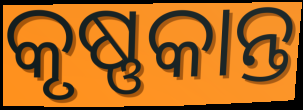
କୃଷ୍ଣକାନ୍ତ